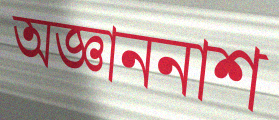
অজ্ঞাননাশ